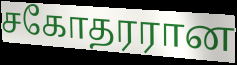
சகோதரரான